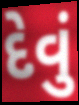
દેવું